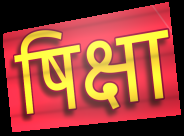
षिक्षा